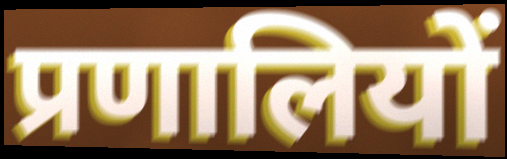
प्रणालियों